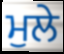
ਮੁਲੇ